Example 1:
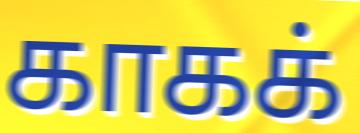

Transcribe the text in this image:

காகக்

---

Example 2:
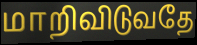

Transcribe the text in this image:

மாறிவிடுவதே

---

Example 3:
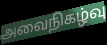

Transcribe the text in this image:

அவைநிகழ்வு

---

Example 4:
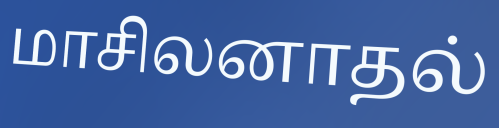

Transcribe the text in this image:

மாசிலனாதல்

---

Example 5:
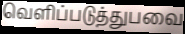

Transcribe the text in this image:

வெளிப்படுத்துபவை